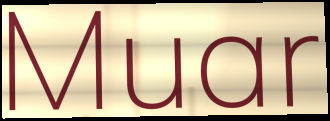
Muar